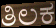
ತಿಲಕ